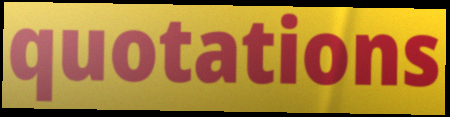
quotations